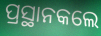
ପ୍ରସ୍ଥାନକଲେ